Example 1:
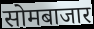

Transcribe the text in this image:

सोमबाजार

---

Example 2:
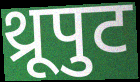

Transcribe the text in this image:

थ्रूपुट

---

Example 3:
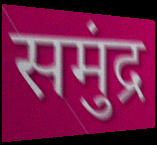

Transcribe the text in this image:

समुंद्र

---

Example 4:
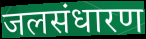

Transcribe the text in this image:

जलसंधारण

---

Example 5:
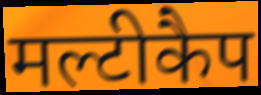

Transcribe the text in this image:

मल्टीकैप